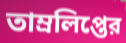
তাম্রলিপ্তের